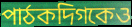
পাঠকদিগকেও